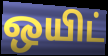
ஒயிட்